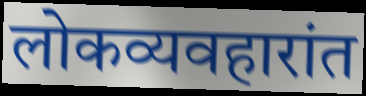
लोकव्यवहारांत